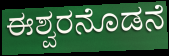
ಈಶ್ವರನೊಡನೆ